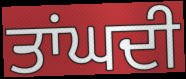
ਤਾਂਘਦੀ